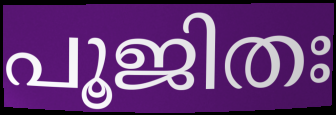
പൂജിതഃ